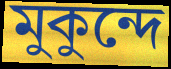
মুকুন্দে